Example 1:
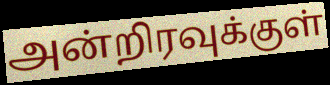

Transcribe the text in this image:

அன்றிரவுக்குள்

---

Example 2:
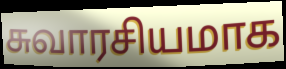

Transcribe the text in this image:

சுவாரசியமாக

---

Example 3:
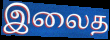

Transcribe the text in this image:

இலைத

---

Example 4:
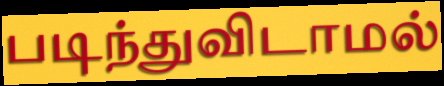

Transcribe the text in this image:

படிந்துவிடாமல்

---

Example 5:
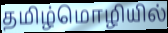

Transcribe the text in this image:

தமிழ்மொழியில்